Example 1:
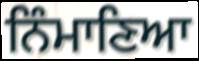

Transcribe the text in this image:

ਨਿੰਮਾਣਿਆ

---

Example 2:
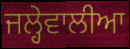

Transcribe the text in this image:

ਜਲ੍ਹੇਵਾਲੀਆ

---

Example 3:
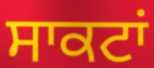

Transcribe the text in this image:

ਸਾਕਟਾਂ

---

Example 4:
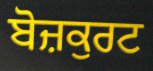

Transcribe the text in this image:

ਬੋਜ਼ਕੁਰਟ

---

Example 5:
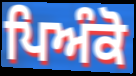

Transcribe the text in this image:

ਪਿਅੰਕੋ